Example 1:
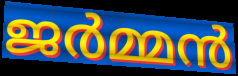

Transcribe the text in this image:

ജർമ്മൻ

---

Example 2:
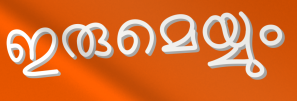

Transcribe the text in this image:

ഇരുമെയ്യും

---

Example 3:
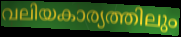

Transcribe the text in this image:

വലിയകാര്യത്തിലും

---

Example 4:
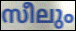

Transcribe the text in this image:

സീലും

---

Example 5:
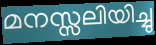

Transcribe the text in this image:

മനസ്സലിയിച്ചു